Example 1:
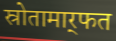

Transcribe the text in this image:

स्रोतामार्फत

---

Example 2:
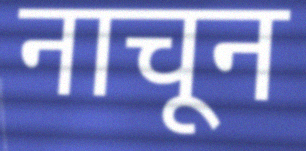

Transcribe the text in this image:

नाचून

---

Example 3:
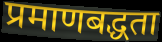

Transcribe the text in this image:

प्रमाणबद्धता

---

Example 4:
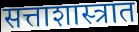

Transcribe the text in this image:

सत्ताशास्त्रात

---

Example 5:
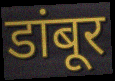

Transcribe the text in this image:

डांबूर